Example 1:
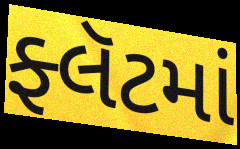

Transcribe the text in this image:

ફ્લૅટમાં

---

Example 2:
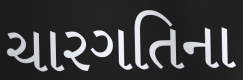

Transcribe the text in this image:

ચારગતિના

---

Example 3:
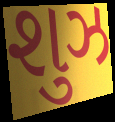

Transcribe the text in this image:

શુઝ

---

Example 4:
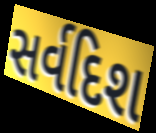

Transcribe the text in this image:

સર્વદિશ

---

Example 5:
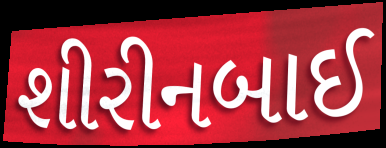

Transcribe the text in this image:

શીરીનબાઈ